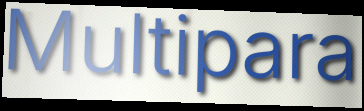
Multipara